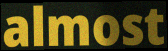
almost